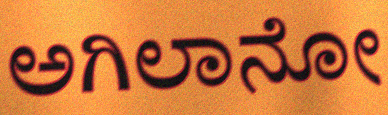
ಅಗಿಲಾನೋ